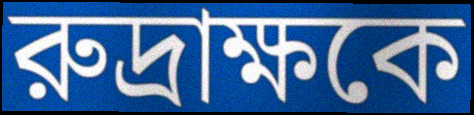
রুদ্রাক্ষকে